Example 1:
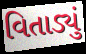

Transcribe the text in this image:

વિતાડ્યું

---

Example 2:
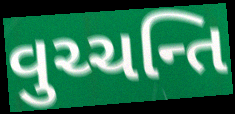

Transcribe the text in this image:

વુચ્ચન્તિ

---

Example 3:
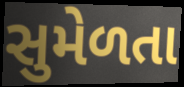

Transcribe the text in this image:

સુમેળતા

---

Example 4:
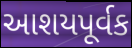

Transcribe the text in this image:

આશયપૂર્વક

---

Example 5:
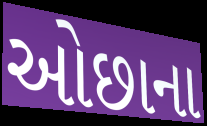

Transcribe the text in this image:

ઓછાના